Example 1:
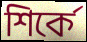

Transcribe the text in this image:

শির্কে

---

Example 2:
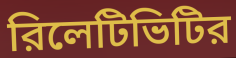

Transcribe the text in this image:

রিলেটিভিটির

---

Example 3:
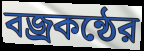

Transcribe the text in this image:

বজ্রকন্ঠের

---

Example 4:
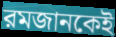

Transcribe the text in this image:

রমজানকেই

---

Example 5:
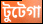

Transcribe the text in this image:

টুটেগা